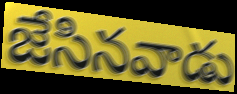
జేసినవాడు